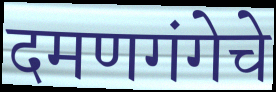
दमणगंगेचे